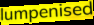
lumpenised